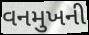
વનમુખની